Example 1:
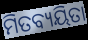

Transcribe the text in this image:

ମିତବ୍ୟୟିତା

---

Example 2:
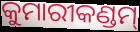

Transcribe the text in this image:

କୁମାରୀକଣ୍ଡମ୍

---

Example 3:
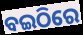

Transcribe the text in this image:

ବଇଠିରେ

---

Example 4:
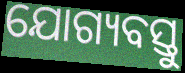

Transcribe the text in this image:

ଯୋଗ୍ୟବସ୍ତୁ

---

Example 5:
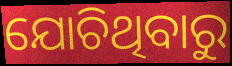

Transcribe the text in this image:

ଯୋଚିଥିବାରୁ